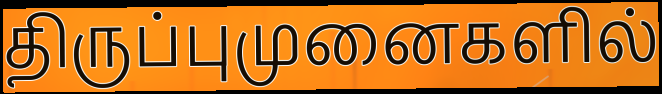
திருப்புமுனைகளில்